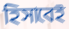
হিসাবেই